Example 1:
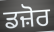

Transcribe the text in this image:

ਡਜ਼ੋਰ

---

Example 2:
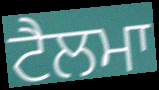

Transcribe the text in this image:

ਟੈਲਮਾ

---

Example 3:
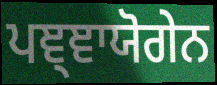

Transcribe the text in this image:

ਪਞ੍ਞਾਯੋਗੇਨ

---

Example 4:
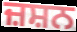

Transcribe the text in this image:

ਜ਼ਸ਼ਨ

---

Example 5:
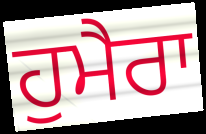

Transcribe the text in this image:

ਹੁਮੈਰਾ